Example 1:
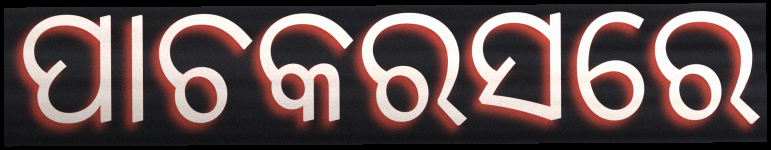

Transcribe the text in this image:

ପାଚକରସରେ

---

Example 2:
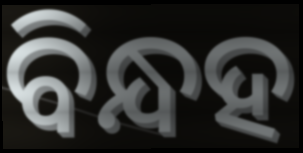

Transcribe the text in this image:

ବିନ୍ଧହ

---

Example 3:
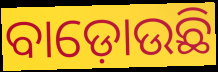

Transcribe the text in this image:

ବାଡ଼ୋଉଛି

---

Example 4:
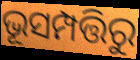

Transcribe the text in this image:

ଭୂସମ୍ପତ୍ତିରୁ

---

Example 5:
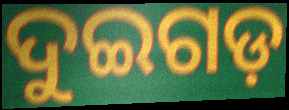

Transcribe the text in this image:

ଦୁଇଗଡ଼